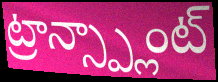
ట్రాన్స్ప్లాంట్